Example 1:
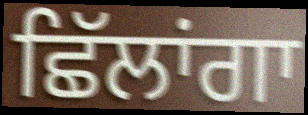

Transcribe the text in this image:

ਛਿੱਲਾਂਗਾ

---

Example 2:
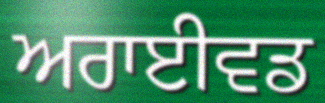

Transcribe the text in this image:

ਅਰਾਈਵਡ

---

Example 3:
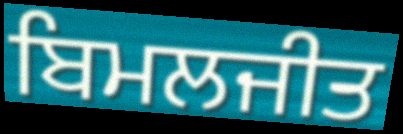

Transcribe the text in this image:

ਬਿਮਲਜੀਤ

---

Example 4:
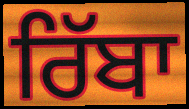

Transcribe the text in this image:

ਰਿੱਬਾ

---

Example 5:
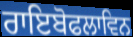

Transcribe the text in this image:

ਰਾਇਬੋਫਲਾਵਿਨ